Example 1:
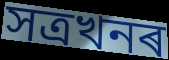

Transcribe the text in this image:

সত্ৰখনৰ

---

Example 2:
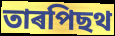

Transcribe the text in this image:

তাৰপিছথ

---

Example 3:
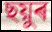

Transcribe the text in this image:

ছয়ুৰ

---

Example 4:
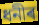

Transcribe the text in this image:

ধনীৰ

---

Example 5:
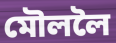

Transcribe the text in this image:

মৌললৈ